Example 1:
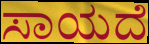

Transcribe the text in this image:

ಸಾಯದೆ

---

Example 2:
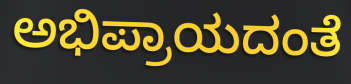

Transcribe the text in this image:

ಅಭಿಪ್ರಾಯದಂತೆ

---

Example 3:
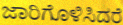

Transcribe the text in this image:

ಜಾರಿಗೊಳಿಸಿದರೆ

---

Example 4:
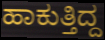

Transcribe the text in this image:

ಹಾಕುತ್ತಿದ್ದ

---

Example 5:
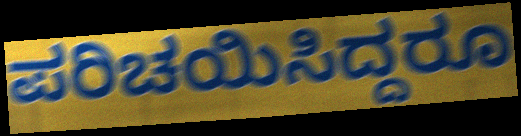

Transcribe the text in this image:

ಪರಿಚಯಿಸಿದ್ದರೂ